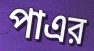
পাএর